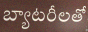
బ్యాటరీలతో